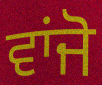
ਵਾਂਜੋ